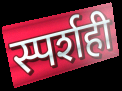
स्पर्शही